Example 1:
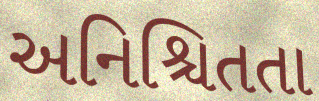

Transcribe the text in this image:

અનિશ્ચિતતા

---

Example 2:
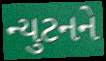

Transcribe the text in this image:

ન્યુટનને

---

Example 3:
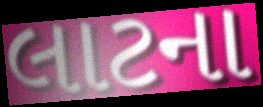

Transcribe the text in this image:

લાટના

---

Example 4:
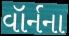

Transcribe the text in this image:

વૉર્નના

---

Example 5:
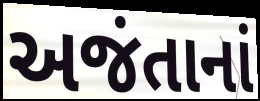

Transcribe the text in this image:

અજંતાનાં